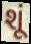
શૂં